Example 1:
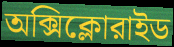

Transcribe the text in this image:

অক্সিক্লোরাইড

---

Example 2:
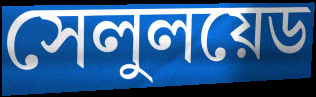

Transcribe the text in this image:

সেলুলয়েড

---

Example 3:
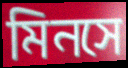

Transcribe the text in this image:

মিনসে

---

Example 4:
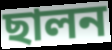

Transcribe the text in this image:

ছালন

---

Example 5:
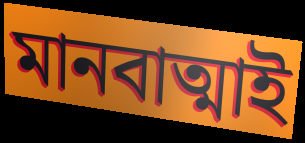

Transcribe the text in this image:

মানবাত্মাই